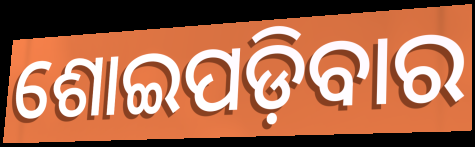
ଶୋଇପଡ଼ିବାର